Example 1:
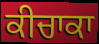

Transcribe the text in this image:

ਕੀਚਾਕਾ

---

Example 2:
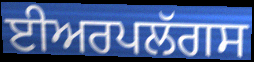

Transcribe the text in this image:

ਈਅਰਪਲੱਗਸ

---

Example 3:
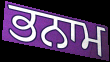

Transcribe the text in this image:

ਭਨਾਮ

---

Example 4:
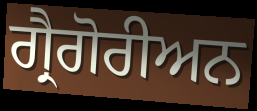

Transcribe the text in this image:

ਗ੍ਰੈਗੋਰੀਅਨ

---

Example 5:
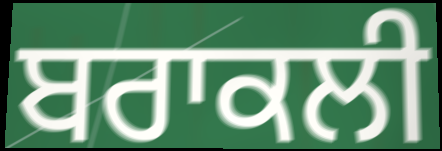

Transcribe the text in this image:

ਬਰਾਕਲੀ